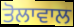
ਤੋਲਾਵਾਲ